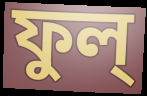
ফুল্